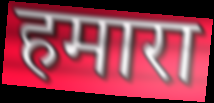
हमारा